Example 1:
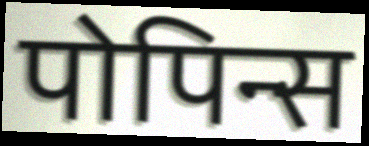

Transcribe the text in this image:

पोपिन्स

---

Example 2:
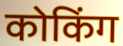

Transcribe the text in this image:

कोकिंग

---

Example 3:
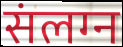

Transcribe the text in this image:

संलग्‍न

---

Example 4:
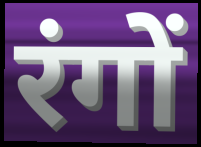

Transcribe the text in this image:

रंगों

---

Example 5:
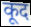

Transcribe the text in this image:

कूद